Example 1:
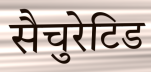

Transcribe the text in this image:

सैचुरेटिड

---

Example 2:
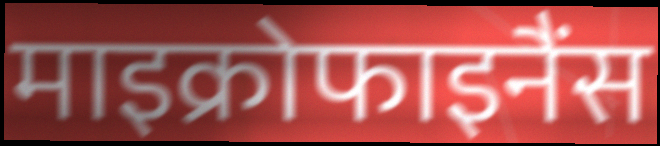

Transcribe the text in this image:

माइक्रोफाइनैंस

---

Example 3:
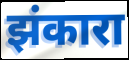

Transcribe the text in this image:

झंकारा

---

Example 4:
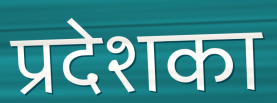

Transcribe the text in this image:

प्रदेशका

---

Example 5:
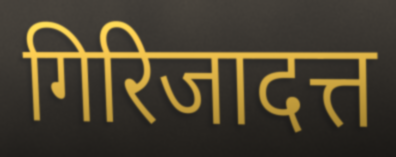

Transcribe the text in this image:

गिरिजादत्त